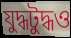
যুদ্ধটুদ্ধও